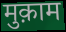
मुक़ाम